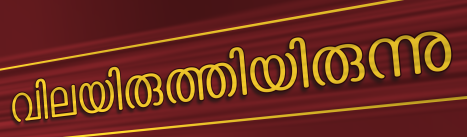
വിലയിരുത്തിയിരുന്നു